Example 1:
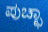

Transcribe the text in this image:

ಪುಚ್ಛಾ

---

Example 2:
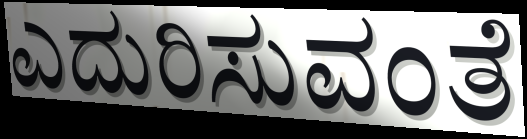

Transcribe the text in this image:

ಎದುರಿಸುವಂತೆ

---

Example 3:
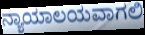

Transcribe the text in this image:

ನ್ಯಾಯಾಲಯವಾಗಲಿ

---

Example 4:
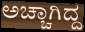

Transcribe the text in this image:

ಅಚ್ಚಾಗಿದ್ದ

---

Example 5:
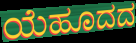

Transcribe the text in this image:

ಯೆಹೂದದ